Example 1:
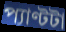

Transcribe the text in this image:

প্যাণ্টটা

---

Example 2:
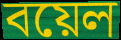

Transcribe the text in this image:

বয়েল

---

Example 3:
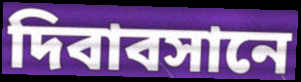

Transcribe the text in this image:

দিবাবসানে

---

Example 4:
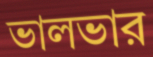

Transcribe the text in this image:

ভালভার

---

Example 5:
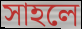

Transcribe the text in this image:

সাহলে